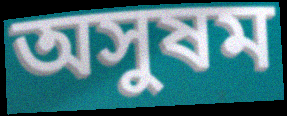
অসুষম